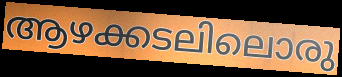
ആഴക്കടലിലൊരു